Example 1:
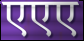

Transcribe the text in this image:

एएए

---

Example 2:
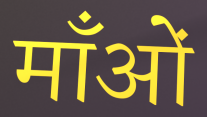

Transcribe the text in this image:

माँओं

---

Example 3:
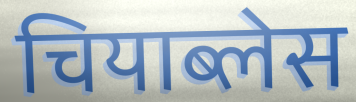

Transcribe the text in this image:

चियाब्लेस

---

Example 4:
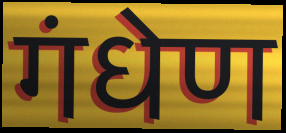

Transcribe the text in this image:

गंधेण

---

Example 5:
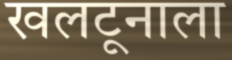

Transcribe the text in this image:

खलटूनाला